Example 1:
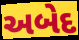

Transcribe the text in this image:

અબેદ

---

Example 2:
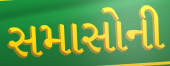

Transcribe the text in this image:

સમાસોની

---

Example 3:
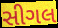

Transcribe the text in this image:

સીગલ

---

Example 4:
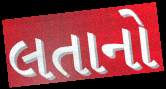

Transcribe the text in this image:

લતાનો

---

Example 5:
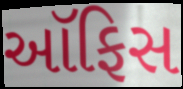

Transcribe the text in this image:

આૅફિસ